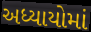
અધ્યાયોમાં